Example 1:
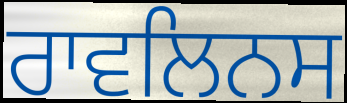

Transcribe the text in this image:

ਰਾਵਲਿਨਸ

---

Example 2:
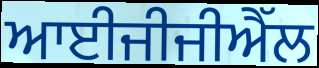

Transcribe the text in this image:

ਆਈਜੀਜੀਐੱਲ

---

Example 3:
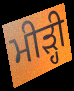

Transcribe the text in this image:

ਮੀੜ੍ਹੀ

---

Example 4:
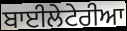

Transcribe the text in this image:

ਬਾਈਲੇਟੇਰੀਆ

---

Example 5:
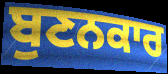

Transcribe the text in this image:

ਬੁਣਨਕਾਰ